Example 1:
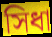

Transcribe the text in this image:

সিধা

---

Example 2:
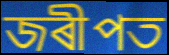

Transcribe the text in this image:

জৰীপত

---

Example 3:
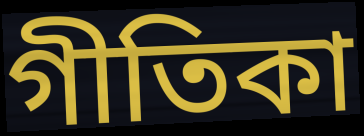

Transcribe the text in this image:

গীতিকা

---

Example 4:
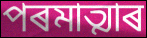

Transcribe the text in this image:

পৰমাত্মাৰ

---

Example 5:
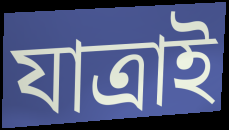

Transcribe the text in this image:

যাত্ৰাই